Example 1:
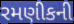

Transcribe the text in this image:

રમણીકની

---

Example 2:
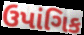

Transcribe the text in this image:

ઉપાંગિક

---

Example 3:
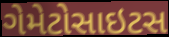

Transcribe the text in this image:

ગેમેટોસાઇટસ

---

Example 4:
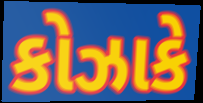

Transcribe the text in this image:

કોઝાકે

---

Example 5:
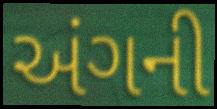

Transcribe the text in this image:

અંગની